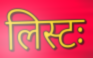
लिस्टः